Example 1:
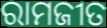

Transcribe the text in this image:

ରାମଜୀତ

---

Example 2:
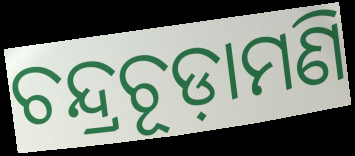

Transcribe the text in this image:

ଚନ୍ଦ୍ରଚୂଡ଼ାମଣି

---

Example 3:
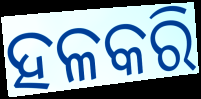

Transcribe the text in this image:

ହଳକରି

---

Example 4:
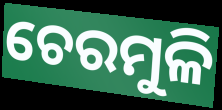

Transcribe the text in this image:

ଚେରମୁଳି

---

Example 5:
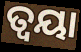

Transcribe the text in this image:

ତ୍ୱୟା